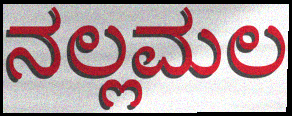
ನಲ್ಲಮಲ